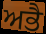
ਅਭੈ